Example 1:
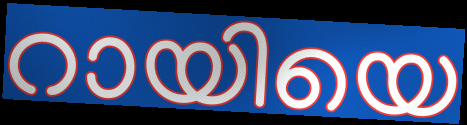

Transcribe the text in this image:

റായിയെ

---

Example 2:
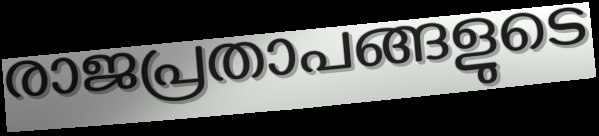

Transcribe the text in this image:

രാജപ്രതാപങ്ങളുടെ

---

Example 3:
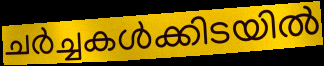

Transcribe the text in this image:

ചർച്ചകൾക്കിടയിൽ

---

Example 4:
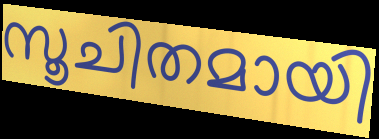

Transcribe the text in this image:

സൂചിതമായി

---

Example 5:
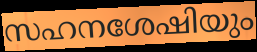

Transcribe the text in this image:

സഹനശേഷിയും